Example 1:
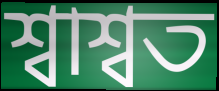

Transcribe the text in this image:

শ্বাশ্বত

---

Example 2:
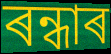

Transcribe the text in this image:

ৰন্ধাৰ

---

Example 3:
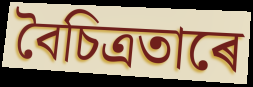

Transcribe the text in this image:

বৈচিত্ৰতাৰে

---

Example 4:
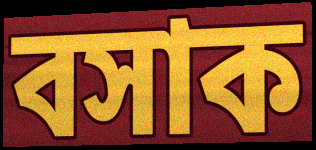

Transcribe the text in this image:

বসাক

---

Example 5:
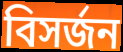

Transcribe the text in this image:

বিসৰ্জন